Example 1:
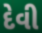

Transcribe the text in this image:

દેવી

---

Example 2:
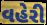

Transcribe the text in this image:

વહેરી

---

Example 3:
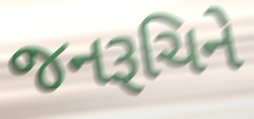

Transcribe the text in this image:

જનરૂચિને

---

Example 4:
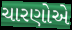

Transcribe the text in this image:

ચારણોએ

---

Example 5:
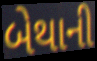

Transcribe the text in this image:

બેથાની